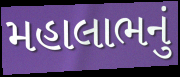
મહાલાભનું